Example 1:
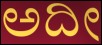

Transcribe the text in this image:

ಅದೀ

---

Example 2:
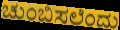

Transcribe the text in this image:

ಚುಂಬಿಸಲೆಂದು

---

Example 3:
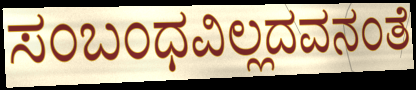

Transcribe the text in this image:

ಸಂಬಂಧವಿಲ್ಲದವನಂತೆ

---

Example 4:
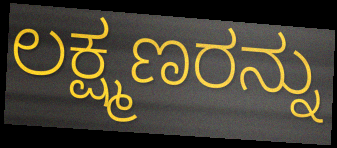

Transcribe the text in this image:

ಲಕ್ಷ್ಮಣರನ್ನು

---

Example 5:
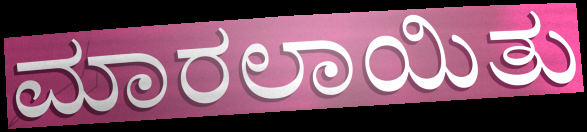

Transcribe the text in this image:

ಮಾರಲಾಯಿತು